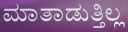
ಮಾತಾಡುತ್ತಿಲ್ಲ